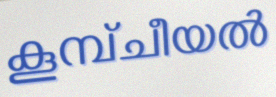
കൂമ്പ്ചീയൽ